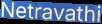
Netravathi